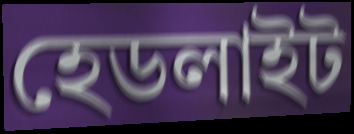
হেডলাইট